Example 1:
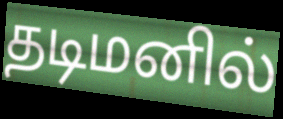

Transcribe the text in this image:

தடிமனில்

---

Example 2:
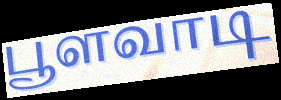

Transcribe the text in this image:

பூளவாடி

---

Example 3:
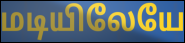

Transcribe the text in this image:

மடியிலேயே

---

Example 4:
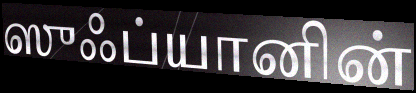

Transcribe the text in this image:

ஸுஃப்யானின்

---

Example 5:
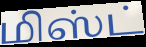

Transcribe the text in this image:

மிஸ்ட்